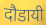
दौडायी